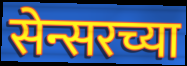
सेन्सरच्या